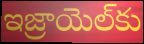
ఇజ్రాయెల్‌కు